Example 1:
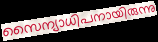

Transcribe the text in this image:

സൈന്യാധിപനായിരുന്നു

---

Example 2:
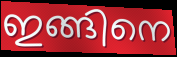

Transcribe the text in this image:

ഇങ്ങിനെ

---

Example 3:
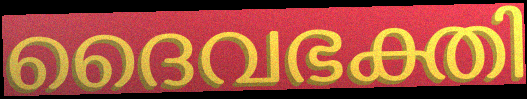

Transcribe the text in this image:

ദൈവഭക്തി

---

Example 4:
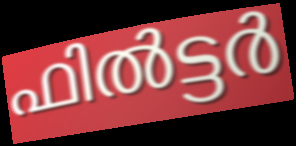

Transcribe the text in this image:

ഫിൽട്ടർ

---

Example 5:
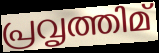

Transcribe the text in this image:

പ്രവൃത്തിമ്